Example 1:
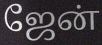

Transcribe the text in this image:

ஜேன்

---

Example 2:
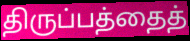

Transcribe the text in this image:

திருப்பத்தைத்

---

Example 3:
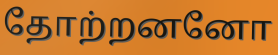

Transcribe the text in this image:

தோற்றனனோ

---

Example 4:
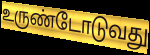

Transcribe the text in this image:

உருண்டோடுவது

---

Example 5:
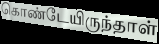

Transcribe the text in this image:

கொண்டேயிருந்தாள்